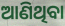
ଆଣିଥିବା